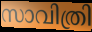
സാവിത്രി